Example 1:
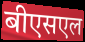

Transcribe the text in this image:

बीएसएल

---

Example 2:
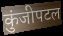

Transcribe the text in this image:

कुंजीपटल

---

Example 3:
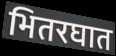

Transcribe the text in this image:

भितरघात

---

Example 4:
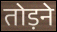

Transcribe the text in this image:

तोड़ने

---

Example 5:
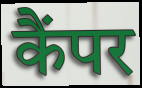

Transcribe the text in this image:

कैंपर